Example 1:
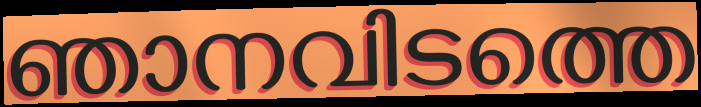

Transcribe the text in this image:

ഞാനവിടത്തെ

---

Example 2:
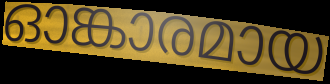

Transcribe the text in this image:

ഓങ്കാരമായ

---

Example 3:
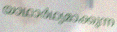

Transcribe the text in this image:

യാഥാർഥ്യമാക്കുന്ന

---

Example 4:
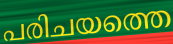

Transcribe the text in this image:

പരിചയത്തെ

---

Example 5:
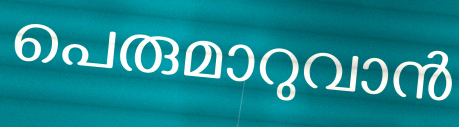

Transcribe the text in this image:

പെരുമാറുവാൻ